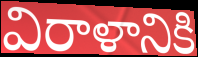
విరాళానికి